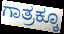
ಗಾತ್ರಕ್ಕೂ